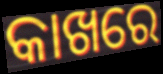
କାଖରେ